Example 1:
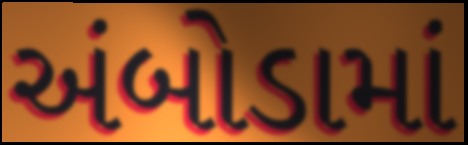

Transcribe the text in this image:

અંબોડામાં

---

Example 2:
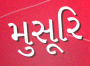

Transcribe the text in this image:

મુસૂરિ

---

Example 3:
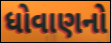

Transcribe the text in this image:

ધોવાણનો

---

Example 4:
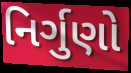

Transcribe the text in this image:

નિર્ગુણો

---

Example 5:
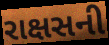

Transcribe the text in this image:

રાક્ષસની